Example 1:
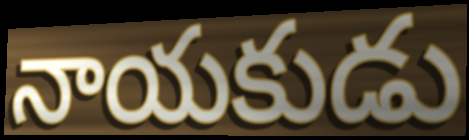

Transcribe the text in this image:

నాయకుడు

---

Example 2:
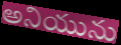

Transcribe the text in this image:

అనియును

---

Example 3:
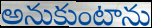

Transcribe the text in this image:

అనుకుంటాను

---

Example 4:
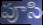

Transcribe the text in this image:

పూసి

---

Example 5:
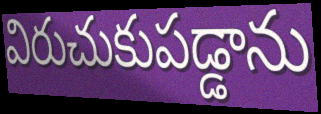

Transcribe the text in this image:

విరుచుకుపడ్డాను